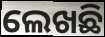
ଲେଖଛି